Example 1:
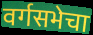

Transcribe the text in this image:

वर्गसभेचा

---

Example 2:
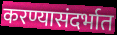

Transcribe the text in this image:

करण्यासंदर्भात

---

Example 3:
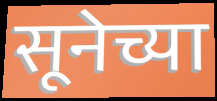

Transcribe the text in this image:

सूनेच्या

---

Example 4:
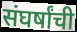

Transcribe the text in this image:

संघर्षांची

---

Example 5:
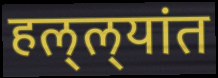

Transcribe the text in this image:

हल्ल्यांत